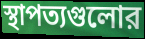
স্থাপত্যগুলোর